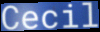
Cecil